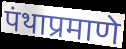
पंथाप्रमाणे